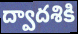
ద్వాదశికి